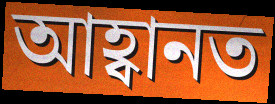
আহ্বানত